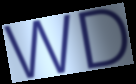
WD